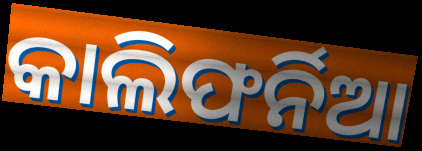
କାଲିଫର୍ନିଆ